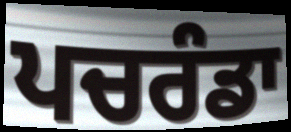
ਪਚਰੰਡਾ